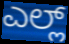
ಎಲ್ಲ್